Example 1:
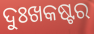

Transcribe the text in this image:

ଦୁଃଖକଷ୍ଟର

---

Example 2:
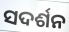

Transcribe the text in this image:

ସଦର୍ଶନ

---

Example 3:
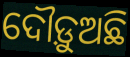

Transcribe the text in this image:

ଦୌଡ଼ୁଅଛି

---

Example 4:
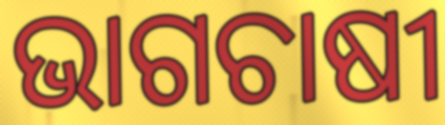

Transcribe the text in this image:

ଭାଗଚାଷୀ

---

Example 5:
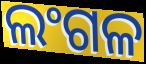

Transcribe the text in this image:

ଲଂଗଳ